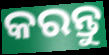
କରନ୍ତୁ